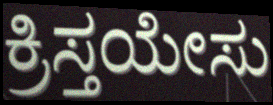
ಕ್ರಿಸ್ತಯೇಸು